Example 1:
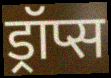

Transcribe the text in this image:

ड्रॉप्स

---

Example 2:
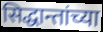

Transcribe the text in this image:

सिद्धान्तांच्या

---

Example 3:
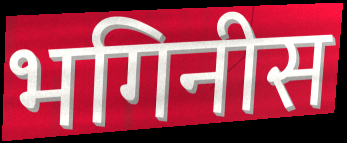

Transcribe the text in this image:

भगिनीस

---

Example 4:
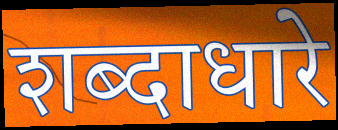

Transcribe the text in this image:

शब्दाधारे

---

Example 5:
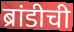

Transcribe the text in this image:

ब्रांडीची